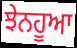
ਝੇਨਹੂਆ